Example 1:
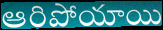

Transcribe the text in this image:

ఆరిపోయాయి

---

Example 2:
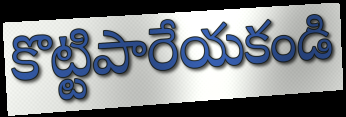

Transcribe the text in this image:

కొట్టిపారేయకండి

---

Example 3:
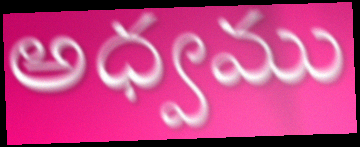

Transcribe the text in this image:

అధ్వము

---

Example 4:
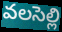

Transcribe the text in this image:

వలసెల్లి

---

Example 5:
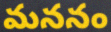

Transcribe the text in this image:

మననం